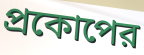
প্রকোপের